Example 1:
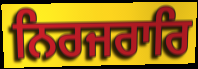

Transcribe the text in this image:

ਨਿਰਜਰਾਰਿ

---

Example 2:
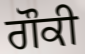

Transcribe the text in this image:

ਗੌਕੀ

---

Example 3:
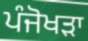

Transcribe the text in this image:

ਪੰਜੋਖੜਾ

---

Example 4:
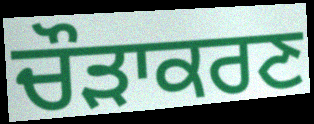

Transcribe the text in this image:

ਚੌੜਾਕਰਣ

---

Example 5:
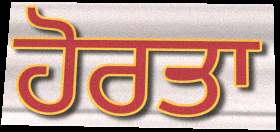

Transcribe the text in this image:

ਹੋਰਤਾ